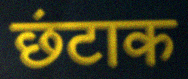
छंटाक